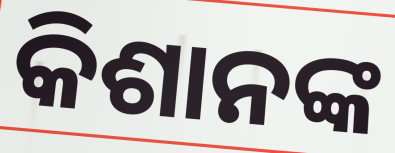
କିଶାନଙ୍କ